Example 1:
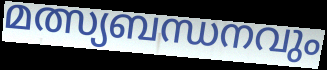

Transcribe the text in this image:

മത്സ്യബന്ധനവും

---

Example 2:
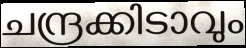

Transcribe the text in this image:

ചന്ദ്രക്കിടാവും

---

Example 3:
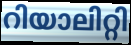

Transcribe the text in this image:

റിയാലിറ്റി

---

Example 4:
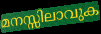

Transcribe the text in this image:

മനസ്സിലാവുക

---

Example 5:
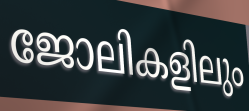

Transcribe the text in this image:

ജോലികളിലും